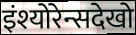
इंश्योरेन्सदेखो